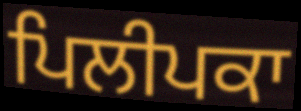
ਪਿਲੀਪਕਾ